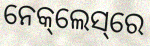
ନେକ୍‌ଲେସ୍‌ରେ